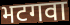
भटगवा